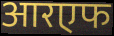
आरएफ